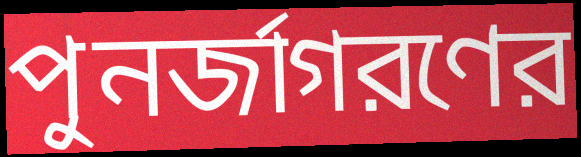
পুনর্জাগরণের